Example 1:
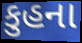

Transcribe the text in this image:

કુહના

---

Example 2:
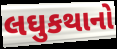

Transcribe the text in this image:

લઘુકથાનો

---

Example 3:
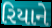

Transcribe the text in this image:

રિયાને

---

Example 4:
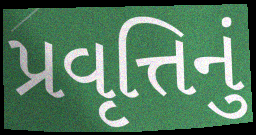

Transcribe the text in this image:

પ્રવૃત્તિનું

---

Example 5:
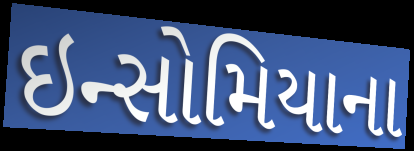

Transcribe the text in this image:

ઇન્સોમિયાના